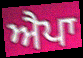
ਐਪਾ